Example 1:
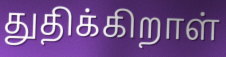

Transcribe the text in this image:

துதிக்கிறாள்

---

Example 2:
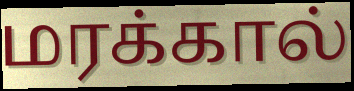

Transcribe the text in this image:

மரக்கால்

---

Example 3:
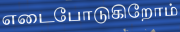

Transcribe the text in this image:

எடைபோடுகிறோம்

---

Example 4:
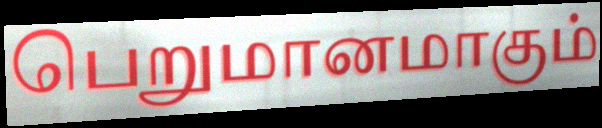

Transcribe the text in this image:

பெறுமானமாகும்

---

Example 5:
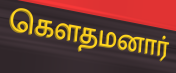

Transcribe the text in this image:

கெளதமனார்